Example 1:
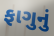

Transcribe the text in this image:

ફાગુનું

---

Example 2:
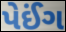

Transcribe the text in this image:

પેઈંગ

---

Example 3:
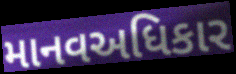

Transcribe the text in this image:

માનવઅધિકાર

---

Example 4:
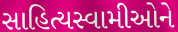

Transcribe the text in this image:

સાહિત્યસ્વામીઓને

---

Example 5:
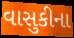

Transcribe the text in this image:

વાસુકીના